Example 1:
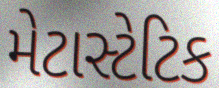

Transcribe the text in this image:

મેટાસ્ટેટિક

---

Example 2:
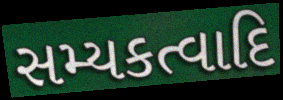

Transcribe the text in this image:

સમ્યકત્વાદિ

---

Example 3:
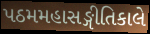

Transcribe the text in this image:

પઠમમહાસઙ્ગીતિકાલે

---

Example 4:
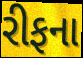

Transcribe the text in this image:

રીફના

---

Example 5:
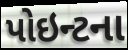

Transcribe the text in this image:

પોઇન્ટના